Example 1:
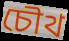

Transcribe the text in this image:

চৌথ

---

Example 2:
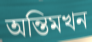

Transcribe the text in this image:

অন্তিমখন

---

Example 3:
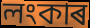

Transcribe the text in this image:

লংকাৰ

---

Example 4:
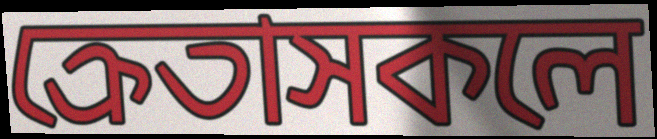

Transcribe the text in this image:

ক্ৰেতাসকলে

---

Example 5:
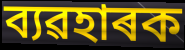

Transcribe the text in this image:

ব্যৱহাৰক